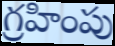
గ్రహింపు